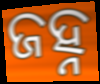
ଜହ୍ନ